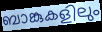
ബാങ്കുകളിലും